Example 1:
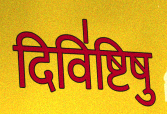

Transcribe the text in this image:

दिवि॑ष्टिषु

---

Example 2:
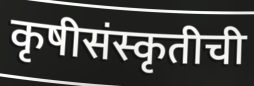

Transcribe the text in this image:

कृषीसंस्कृतीची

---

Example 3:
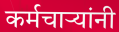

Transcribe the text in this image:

कर्मचाऱ्यांनी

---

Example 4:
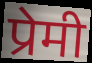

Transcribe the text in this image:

प्रेमी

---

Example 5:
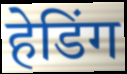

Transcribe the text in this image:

हेडिंग